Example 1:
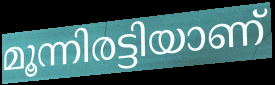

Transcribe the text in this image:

മൂന്നിരട്ടിയാണ്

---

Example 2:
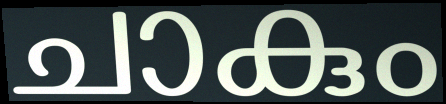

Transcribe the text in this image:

ചാകും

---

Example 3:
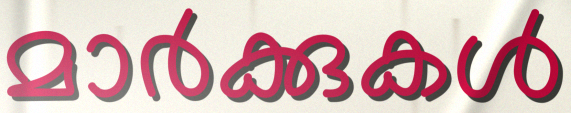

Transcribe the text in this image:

മാർക്കുകൾ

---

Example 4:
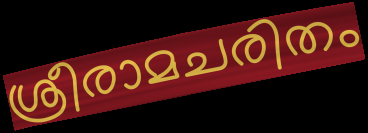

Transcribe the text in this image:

ശ്രീരാമചരിതം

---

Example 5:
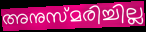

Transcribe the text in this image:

അനുസ്മരിച്ചില്ല